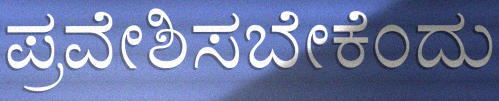
ಪ್ರವೇಶಿಸಬೇಕೆಂದು